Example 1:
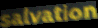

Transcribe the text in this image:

salvation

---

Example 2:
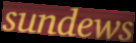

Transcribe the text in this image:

sundews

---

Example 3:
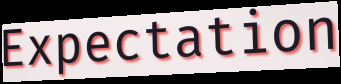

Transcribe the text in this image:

Expectation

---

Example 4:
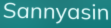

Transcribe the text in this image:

Sannyasin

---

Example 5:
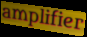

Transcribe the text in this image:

amplifier